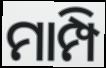
ମାମ୍ପି